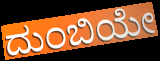
ದುಂಬಿಯೇ